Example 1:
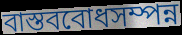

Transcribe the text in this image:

বাস্তববোধসম্পন্ন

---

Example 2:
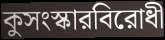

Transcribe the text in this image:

কুসংস্কারবিরোধী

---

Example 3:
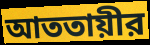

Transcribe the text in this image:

আততায়ীর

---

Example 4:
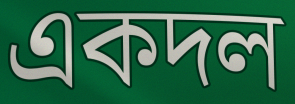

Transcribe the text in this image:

একদল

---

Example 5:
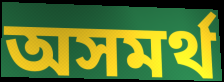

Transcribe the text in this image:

অসমর্থ